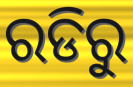
ରଡିରୁ